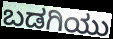
ಬಡಗಿಯು